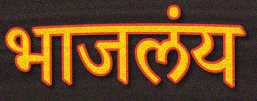
भाजलंय